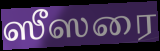
ஸீஸரை